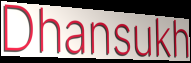
Dhansukh